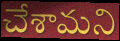
చేశామని